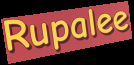
Rupalee